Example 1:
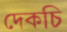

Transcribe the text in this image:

দেকচি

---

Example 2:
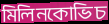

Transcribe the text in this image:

মিলিনকোভিচ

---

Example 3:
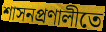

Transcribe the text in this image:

শাসনপ্রণালীতে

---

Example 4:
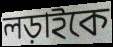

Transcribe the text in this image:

লড়াইকে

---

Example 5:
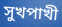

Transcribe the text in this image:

সুখপাখী